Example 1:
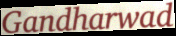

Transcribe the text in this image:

Gandharwad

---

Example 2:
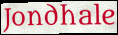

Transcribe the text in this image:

Jondhale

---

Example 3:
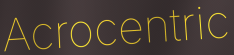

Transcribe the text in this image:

Acrocentric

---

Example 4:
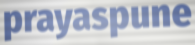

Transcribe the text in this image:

prayaspune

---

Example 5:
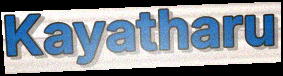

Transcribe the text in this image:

Kayatharu